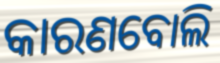
କାରଣବୋଲି